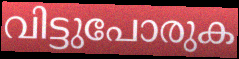
വിട്ടുപോരുക